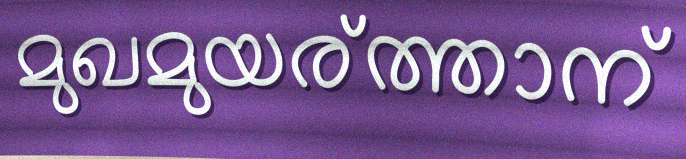
മുഖമുയര്ത്താന്